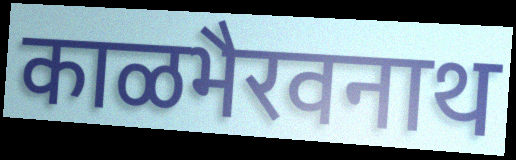
काळभैरवनाथ